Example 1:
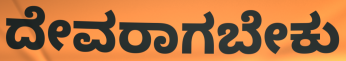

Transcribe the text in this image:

ದೇವರಾಗಬೇಕು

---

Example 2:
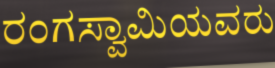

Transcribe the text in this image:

ರಂಗಸ್ವಾಮಿಯವರು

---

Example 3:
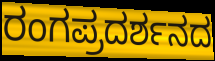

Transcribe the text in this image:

ರಂಗಪ್ರದರ್ಶನದ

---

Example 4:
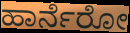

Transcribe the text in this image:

ಹಾರ್ನೆರೋ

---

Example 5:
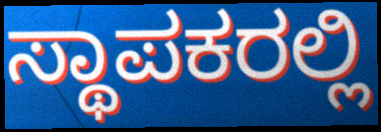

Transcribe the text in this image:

ಸ್ಥಾಪಕರಲ್ಲಿ